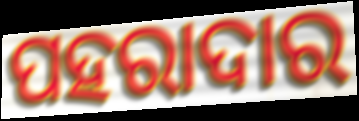
ପହରାଦାର